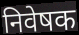
निवेषक